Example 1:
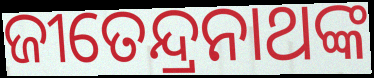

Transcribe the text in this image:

ଜୀତେନ୍ଦ୍ରନାଥଙ୍କ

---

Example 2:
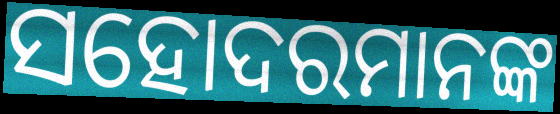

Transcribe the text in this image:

ସହୋଦରମାନଙ୍କ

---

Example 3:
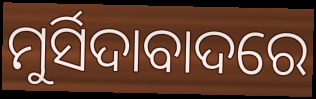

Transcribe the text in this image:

ମୁର୍ସିଦାବାଦରେ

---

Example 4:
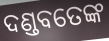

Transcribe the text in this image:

ଦଣ୍ଡବତେଙ୍କ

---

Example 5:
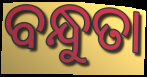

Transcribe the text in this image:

ବନ୍ଧୁତା